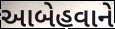
આબેહવાને